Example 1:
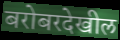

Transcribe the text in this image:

बरोबरदेखील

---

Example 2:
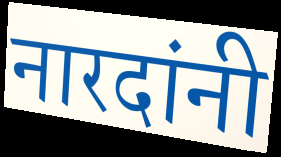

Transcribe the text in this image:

नारदांनी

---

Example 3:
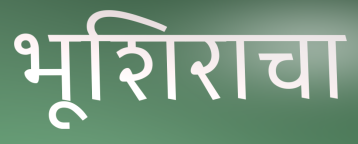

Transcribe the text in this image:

भूशिराचा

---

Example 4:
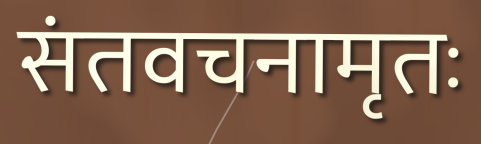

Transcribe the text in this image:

संतवचनामृतः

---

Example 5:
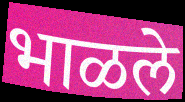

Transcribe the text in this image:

भाळले